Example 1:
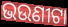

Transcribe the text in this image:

ଭଉଣୀଟା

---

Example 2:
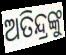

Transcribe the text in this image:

ଅତିନ୍ଦ୍ରଙ୍କୁ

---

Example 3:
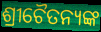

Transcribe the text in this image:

ଶ୍ରୀଚୈତନ୍ୟଙ୍କ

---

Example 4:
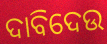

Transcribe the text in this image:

ଦାବିଦେଉ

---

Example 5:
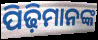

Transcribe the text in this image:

ପିଢ଼ିମାନଙ୍କ